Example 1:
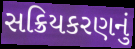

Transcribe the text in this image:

સક્રિયકરણનું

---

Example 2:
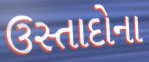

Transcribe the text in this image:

ઉસ્તાદોના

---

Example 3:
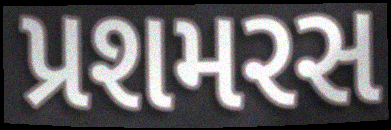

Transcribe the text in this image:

પ્રશમરસ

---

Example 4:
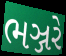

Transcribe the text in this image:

ભઞ્જરે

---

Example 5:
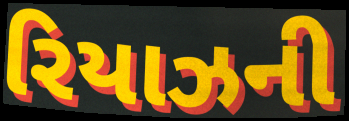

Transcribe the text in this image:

રિયાઝની